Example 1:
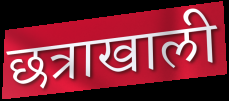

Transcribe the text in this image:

छत्राखाली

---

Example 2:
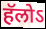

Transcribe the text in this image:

हॅलोऽ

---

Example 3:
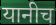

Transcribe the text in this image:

यानीच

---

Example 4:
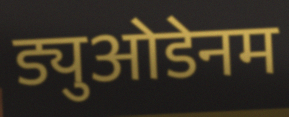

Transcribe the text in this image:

ड्युओडेनम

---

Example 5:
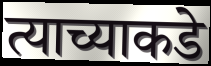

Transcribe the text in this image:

त्याच्याकडे